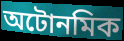
অটোনমিক